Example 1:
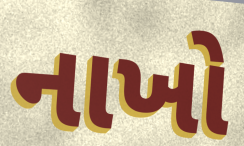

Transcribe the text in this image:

નાખો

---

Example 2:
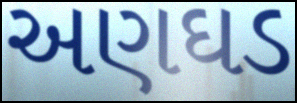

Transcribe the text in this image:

અણઘડ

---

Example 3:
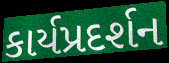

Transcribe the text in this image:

કાર્યપ્રદર્શન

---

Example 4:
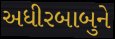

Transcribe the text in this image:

અધીરબાબુને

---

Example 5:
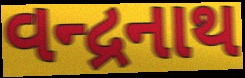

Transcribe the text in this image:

વન્દ્રનાથ